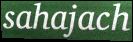
sahajach